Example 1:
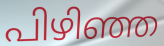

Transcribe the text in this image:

പിഴിഞ്ഞ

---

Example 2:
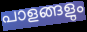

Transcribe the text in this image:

പാളങ്ങളും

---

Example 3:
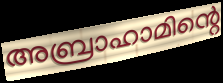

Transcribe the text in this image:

അബ്രാഹാമിന്റെ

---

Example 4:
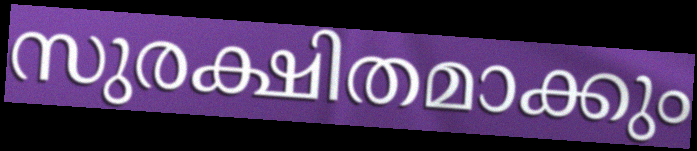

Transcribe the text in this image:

സുരക്ഷിതമാക്കും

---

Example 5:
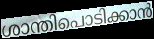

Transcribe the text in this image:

ശാന്തിപൊടിക്കാൻ